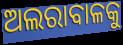
ଅଲରାବାଳକୁ